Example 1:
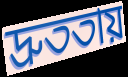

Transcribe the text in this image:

দ্রুততায়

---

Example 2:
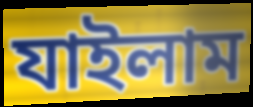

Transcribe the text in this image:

যাইলাম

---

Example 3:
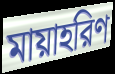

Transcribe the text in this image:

মায়াহরিণ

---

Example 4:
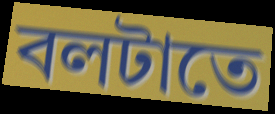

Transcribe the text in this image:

বলটাতে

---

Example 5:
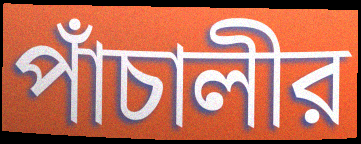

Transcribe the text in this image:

পাঁচালীর